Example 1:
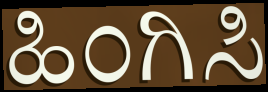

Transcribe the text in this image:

ಹಿಂಗಿಸಿ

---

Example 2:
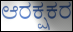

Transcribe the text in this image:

ಆರಕ್ಷಕರ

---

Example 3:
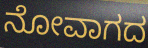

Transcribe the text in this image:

ನೋವಾಗದ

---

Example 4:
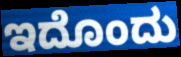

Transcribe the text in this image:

ಇದೊಂದು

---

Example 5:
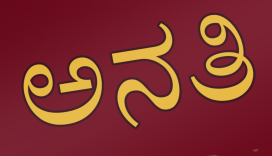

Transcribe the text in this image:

ಅನತಿ